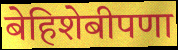
बेहिशेबीपणा